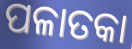
ପଳାତକା